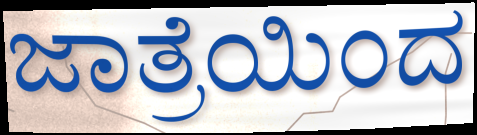
ಜಾತ್ರೆಯಿಂದ